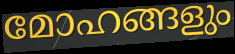
മോഹങ്ങളും